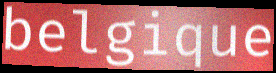
belgique